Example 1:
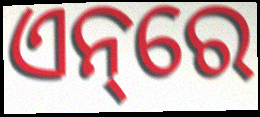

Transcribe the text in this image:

ଏନ୍‌ରେ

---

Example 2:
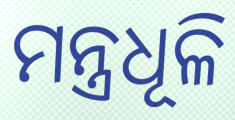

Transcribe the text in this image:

ମନ୍ତ୍ରଧୂଳି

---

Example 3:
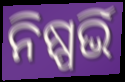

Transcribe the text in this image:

ନିଷ୍ପର୍ଭି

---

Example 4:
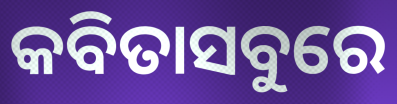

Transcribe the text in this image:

କବିତାସବୁରେ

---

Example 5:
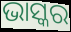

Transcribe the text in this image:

ଭାସ୍କର